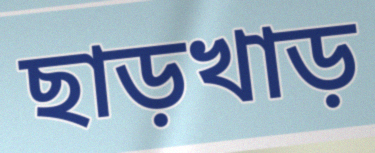
ছাড়খাড়